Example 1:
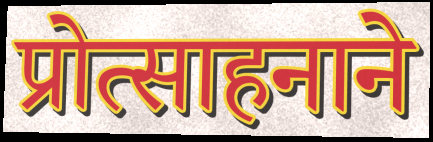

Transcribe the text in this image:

प्रोत्साहनाने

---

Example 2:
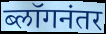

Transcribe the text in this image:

ब्लॉगनंतर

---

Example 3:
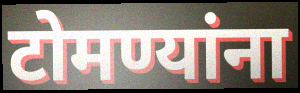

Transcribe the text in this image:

टोमण्यांना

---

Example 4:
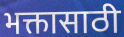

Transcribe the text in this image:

भक्तासाठी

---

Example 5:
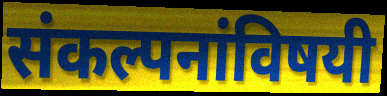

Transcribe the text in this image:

संकल्पनांविषयी